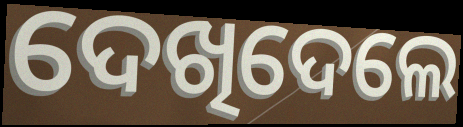
ଦେଖିଦେଲେ